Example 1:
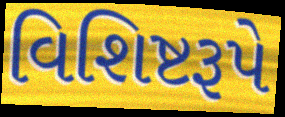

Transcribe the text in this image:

વિશિષ્ટરૂપે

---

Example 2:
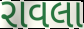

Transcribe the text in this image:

રાવલા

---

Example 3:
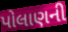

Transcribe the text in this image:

પોલાણની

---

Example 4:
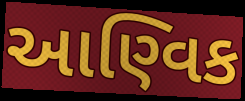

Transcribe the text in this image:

આણ્વિક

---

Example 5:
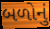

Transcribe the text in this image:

બળોનું